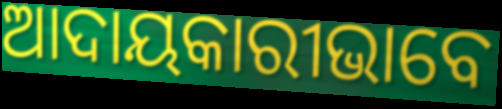
ଆଦାୟକାରୀଭାବେ